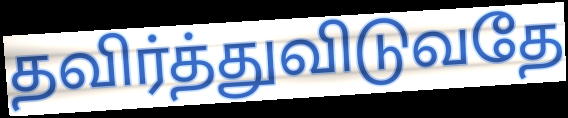
தவிர்த்துவிடுவதே